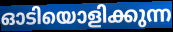
ഓടിയൊളിക്കുന്ന